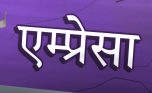
एम्प्रेसा